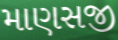
માણસજી